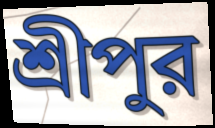
শ্রীপুর